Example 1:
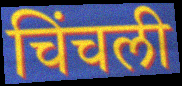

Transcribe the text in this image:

चिंचली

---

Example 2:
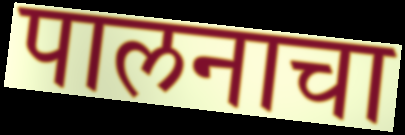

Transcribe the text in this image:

पालनाचा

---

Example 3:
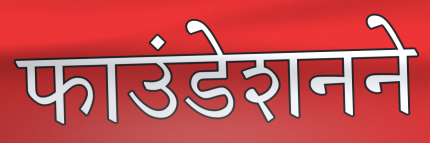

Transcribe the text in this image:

फाउंडेशनने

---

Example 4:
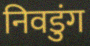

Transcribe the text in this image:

निवडुंग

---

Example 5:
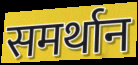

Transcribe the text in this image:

समर्थान